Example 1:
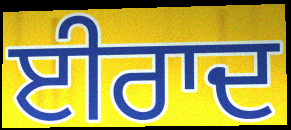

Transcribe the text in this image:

ਈਰਾਦ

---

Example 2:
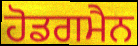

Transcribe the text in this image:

ਹੋਡਗਮੈਨ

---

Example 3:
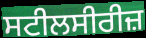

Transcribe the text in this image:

ਸਟੀਲਸੀਰੀਜ਼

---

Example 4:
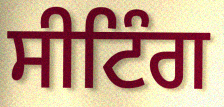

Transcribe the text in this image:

ਸੀਟਿੰਗ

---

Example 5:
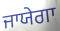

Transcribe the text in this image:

ਜਾਯੇਗਾ